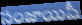
సంజాయిషీ